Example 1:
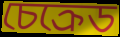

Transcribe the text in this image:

চেক্ৰেড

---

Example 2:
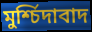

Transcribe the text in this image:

মুৰ্শ্চিদাবাদ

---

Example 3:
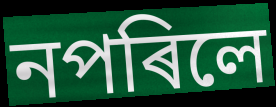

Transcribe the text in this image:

নপৰিলে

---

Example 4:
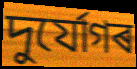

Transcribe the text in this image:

দুৰ্যোগৰ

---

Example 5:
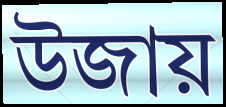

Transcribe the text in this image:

উজায়